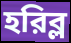
হরিব্ল